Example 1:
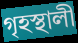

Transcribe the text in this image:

গৃহস্থালী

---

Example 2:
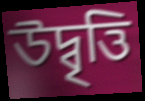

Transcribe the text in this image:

উদ্বৃত্তি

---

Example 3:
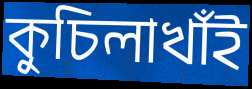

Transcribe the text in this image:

কুচিলাখাঁই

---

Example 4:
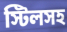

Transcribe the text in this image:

স্টিলসহ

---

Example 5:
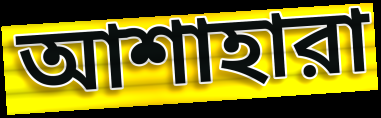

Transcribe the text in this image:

আশাহারা